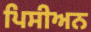
ਪਿਸੀਅਨ